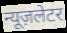
न्यूज़लेटर